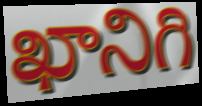
ఖానిగి